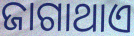
ଜାଗାଥାଏ